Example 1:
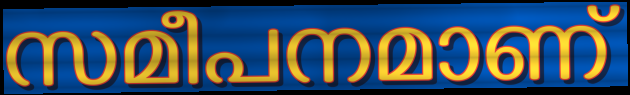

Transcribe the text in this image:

സമീപനമാണ്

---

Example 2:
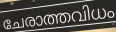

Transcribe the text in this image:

ചേരാത്തവിധം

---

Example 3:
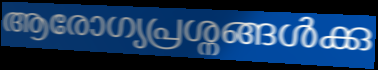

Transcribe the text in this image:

ആരോഗ്യപ്രശ്നങ്ങൾക്കു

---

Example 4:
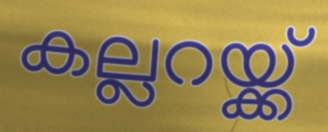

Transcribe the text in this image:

കല്ലറയ്ക്ക്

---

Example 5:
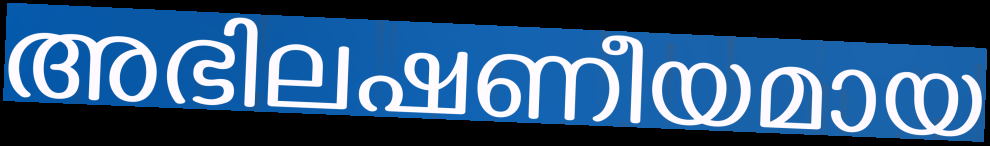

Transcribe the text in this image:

അഭിലഷണീയമായ